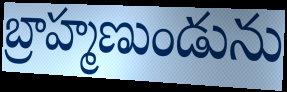
బ్రాహ్మణుండును